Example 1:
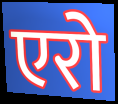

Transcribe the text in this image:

एरो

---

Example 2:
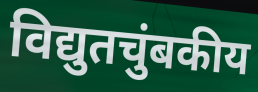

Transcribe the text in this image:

विद्युतचुंबकीय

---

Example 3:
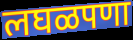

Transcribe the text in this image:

लघळपणा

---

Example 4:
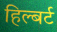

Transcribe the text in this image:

हिल्बर्ट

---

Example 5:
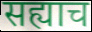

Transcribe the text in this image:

सह्याच